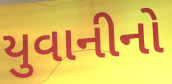
યુવાનીનો